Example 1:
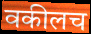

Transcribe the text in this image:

वकीलच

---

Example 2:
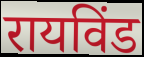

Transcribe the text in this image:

रायविंड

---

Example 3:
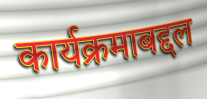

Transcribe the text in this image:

कार्यक्रमाबद्दल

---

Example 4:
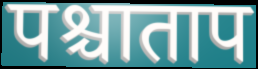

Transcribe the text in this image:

पश्चाताप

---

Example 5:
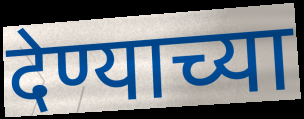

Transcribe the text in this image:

देण्याच्या